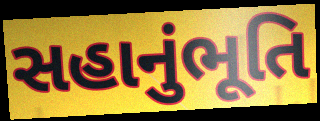
સહાનુંભૂતિ